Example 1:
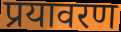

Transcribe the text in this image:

प्रयावरण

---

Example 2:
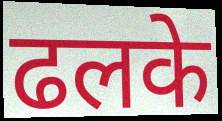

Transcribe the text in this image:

ढलके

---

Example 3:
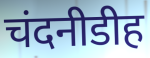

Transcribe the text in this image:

चंदनीडीह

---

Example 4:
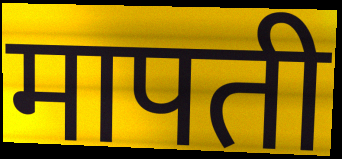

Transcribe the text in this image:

मापती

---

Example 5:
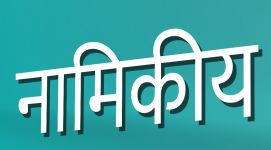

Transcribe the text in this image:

नामिकीय